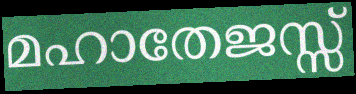
മഹാതേജസ്സ്